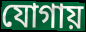
যোগায়